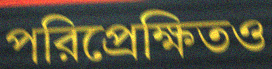
পরিপ্রেক্ষিতও